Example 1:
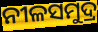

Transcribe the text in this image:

ନୀଳସମୁଦ୍ର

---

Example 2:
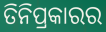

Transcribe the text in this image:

ତିନିପ୍ରକାରର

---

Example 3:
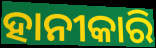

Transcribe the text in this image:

ହାନୀକାରି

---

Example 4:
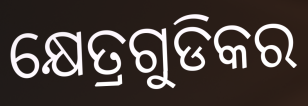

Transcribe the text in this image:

କ୍ଷେତ୍ରଗୁଡିକର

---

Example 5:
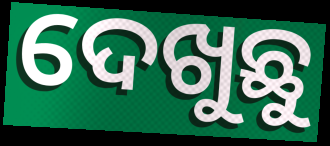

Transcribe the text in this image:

ଦେଖୁଛୁ